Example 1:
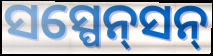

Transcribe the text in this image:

ସସ୍ପେନ୍‌ସନ୍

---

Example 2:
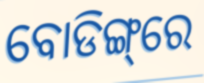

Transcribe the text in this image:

ବୋଡିଙ୍ଗ୍‌ରେ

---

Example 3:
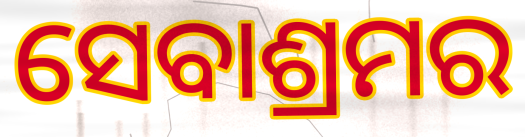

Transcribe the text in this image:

ସେବାଶ୍ରମର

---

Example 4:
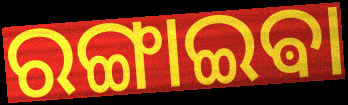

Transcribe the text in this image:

ରଙ୍ଗାଇଵା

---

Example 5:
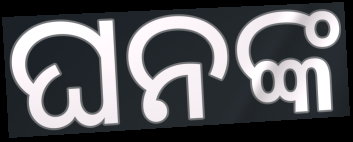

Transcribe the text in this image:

ଘନଙ୍କ